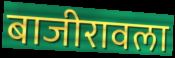
बाजीरावला